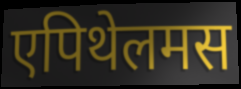
एपिथेलमस